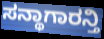
ಸನ್ಥಾಗಾರನ್ತಿ